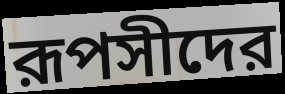
রূপসীদের